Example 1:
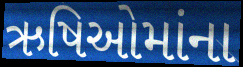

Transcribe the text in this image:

ઋષિઓમાંના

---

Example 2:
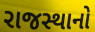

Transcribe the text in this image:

રાજસ્થાનો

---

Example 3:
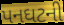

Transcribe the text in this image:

પનઘટની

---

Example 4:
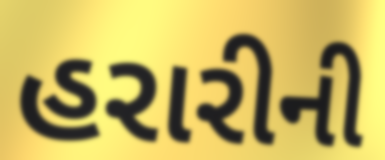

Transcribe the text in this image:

હરારીની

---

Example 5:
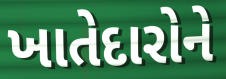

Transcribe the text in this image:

ખાતેદારોને